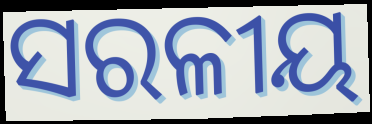
ସରଳୀୟ